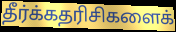
தீர்க்கதரிசிகளைக்